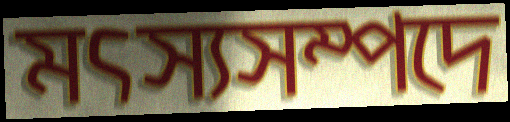
মৎস্যসম্পদে